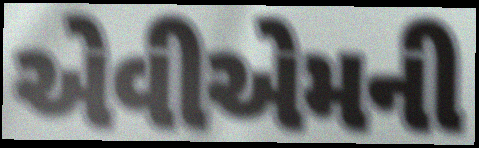
એવીએમની